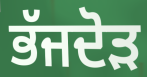
ਭੱਜਦੋੜ